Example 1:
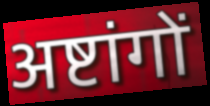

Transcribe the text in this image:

अष्टांगों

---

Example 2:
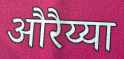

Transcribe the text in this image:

औरैय्या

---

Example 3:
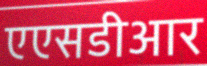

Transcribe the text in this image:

एएसडीआर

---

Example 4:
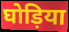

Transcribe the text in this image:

घोड़िया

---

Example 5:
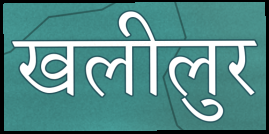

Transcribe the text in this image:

खलीलुर